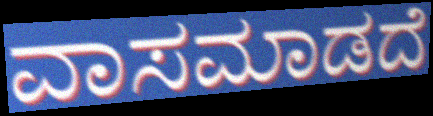
ವಾಸಮಾಡದೆ